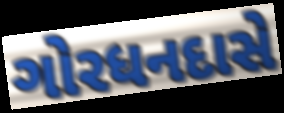
ગોરધનદાસે